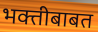
भक्तीबाबत